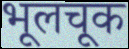
भूलचूक